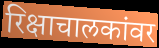
रिक्षाचालकांवर